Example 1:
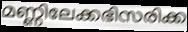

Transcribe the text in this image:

മണ്ണിലേക്കഭിസരിക്ക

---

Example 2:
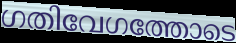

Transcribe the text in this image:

ഗതിവേഗത്തോടെ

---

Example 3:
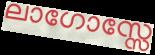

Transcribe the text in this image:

ലാഗോസ്സേ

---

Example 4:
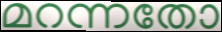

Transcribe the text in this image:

മറന്നതോ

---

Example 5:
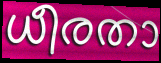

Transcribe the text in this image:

ധീരതാ